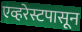
एव्हरेस्टपासून